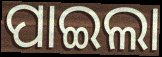
ପାଇଲା